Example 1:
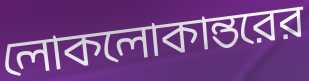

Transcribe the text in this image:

লোকলোকান্তরের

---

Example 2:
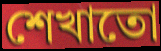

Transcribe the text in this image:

শেখাতো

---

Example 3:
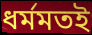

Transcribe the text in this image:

ধর্মমতই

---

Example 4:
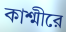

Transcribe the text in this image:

কাশ্মীরে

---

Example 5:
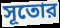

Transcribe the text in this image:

সূতোর